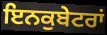
ਇਨਕੁਬੇਟਰਾਂ